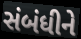
સંબંધીને